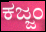
ಕಜ್ಜಂ